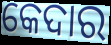
କେଦାର